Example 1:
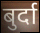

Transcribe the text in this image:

बुर्दा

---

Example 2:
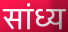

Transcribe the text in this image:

सांध्य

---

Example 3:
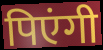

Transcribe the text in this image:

पिएंगी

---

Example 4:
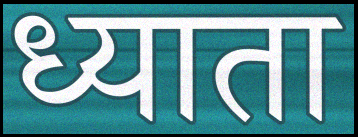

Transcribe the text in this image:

ध्याता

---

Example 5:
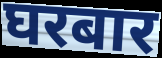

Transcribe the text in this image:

घरबार